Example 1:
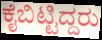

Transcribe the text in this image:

ಕೈಬಿಟ್ಟಿದ್ದರು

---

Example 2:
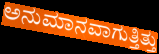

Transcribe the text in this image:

ಅನುಮಾನವಾಗುತ್ತಿತ್ತು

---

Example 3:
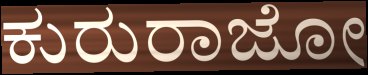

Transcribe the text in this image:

ಕುರುರಾಜೋ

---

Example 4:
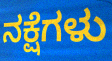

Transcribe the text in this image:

ನಕ್ಷೆಗಳು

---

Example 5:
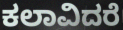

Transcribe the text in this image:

ಕಲಾವಿದರೆ